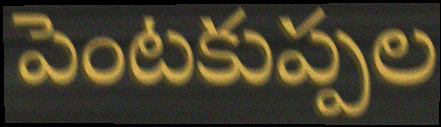
పెంటకుప్పల